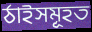
ঠাইসমূহত